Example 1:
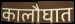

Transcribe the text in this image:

कालौघात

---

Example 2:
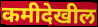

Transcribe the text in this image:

कमीदेखील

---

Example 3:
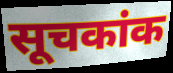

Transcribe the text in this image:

सूचकांक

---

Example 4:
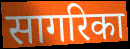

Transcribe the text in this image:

सागरिका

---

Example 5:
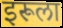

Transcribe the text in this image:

इरूला